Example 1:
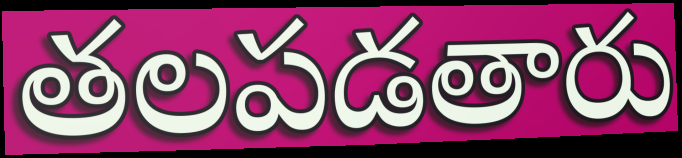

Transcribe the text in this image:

తలపడతారు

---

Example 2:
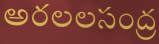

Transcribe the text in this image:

అరలలసంద్ర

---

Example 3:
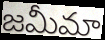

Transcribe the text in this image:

జమీమా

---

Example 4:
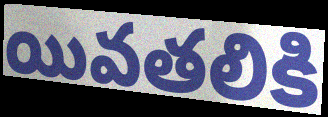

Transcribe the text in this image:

యివతలికి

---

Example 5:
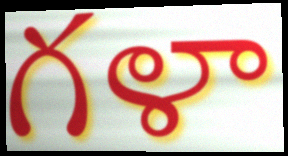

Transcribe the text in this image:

గళా